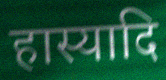
हास्यादि